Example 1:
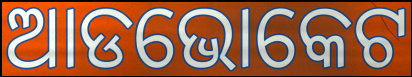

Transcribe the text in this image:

ଆଡଭୋକେଟ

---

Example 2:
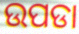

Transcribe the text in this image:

ଉପଡା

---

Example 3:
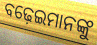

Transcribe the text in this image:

ବଢ଼େଇମାନଙ୍କୁ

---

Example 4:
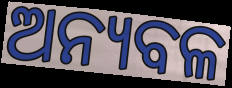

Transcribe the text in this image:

ଅନ୍ୟବଳ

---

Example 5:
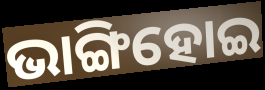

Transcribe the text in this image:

ଭାଙ୍ଗିହୋଇ